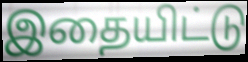
இதையிட்டு